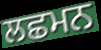
ਲਛਮਨ